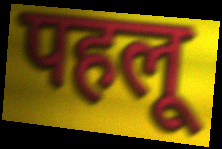
पहलू